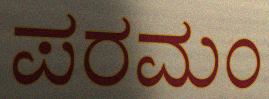
ಪರಮಂ